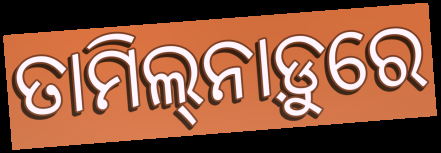
ତାମିଲ୍‌ନାଡ଼ୁରେ